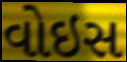
વોઇસ